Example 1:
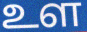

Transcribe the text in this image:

உள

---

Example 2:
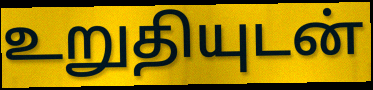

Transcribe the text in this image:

உறுதியுடன்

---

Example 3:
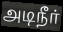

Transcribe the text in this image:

அடிநீர்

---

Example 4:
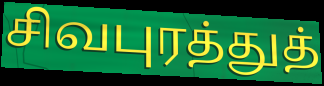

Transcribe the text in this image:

சிவபுரத்துத்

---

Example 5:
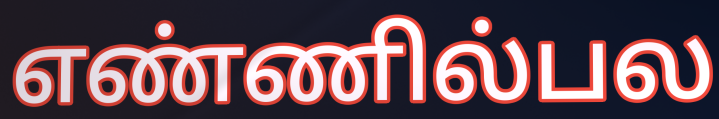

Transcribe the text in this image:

எண்ணில்பல